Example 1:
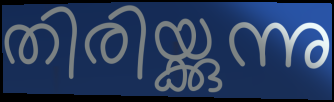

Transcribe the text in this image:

തിരിയ്ക്കുന്നു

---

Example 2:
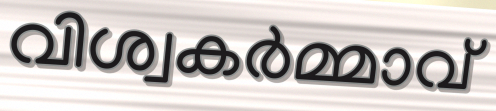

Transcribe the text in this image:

വിശ്വകർമ്മാവ്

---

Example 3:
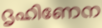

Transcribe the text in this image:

ദൃഹിണേന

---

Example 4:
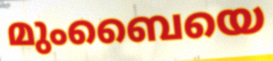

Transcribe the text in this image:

മുംബൈയെ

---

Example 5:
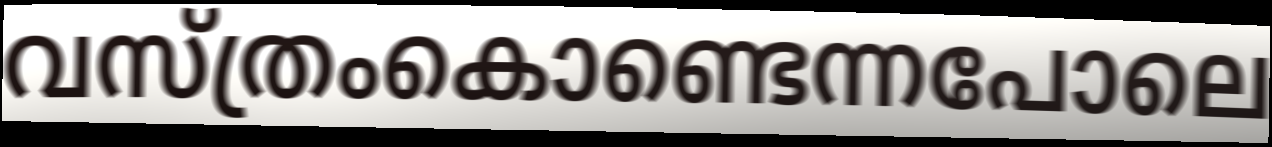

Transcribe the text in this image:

വസ്ത്രംകൊണ്ടെന്നപോലെ